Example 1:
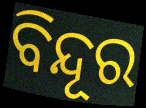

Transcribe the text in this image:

ବିନ୍ଦୂର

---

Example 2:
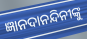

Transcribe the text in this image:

ଜ୍ଞାନଦାନନ୍ଦିନୀଙ୍କୁ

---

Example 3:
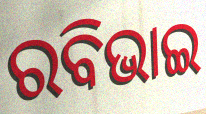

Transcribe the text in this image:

ରବିଭାଇ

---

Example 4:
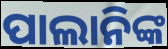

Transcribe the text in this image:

ପାଲାନିଙ୍କ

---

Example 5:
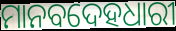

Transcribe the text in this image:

ମାନବଦେହଧାରୀ